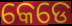
କେଡେ